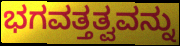
ಭಗವತ್ತತ್ವವನ್ನು